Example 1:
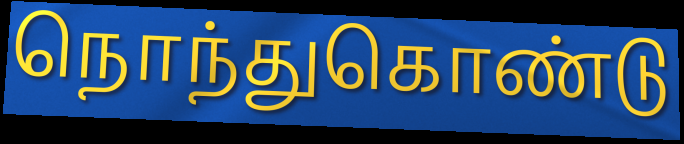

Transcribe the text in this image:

நொந்துகொண்டு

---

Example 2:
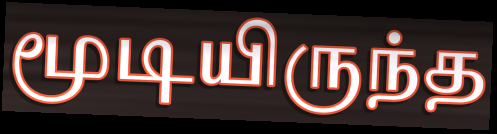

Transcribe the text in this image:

மூடியிருந்த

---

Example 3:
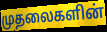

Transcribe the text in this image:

முதலைகளின்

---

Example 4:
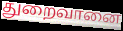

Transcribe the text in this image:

துறைவானை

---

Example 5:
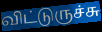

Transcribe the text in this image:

விட்டுருச்சு